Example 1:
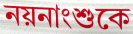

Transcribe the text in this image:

নয়নাংশুকে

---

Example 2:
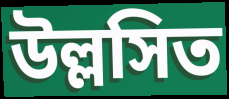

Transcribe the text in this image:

উল্লসিত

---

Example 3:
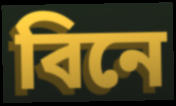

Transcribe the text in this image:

বিনে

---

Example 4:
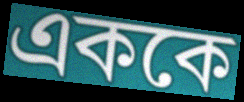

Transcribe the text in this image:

এককে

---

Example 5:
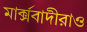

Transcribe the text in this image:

মার্ক্সবাদীরাও